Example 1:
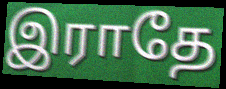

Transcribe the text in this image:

இராதே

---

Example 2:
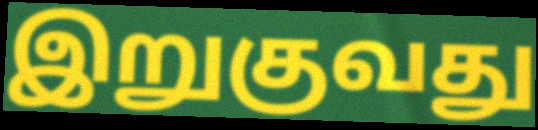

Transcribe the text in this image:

இறுகுவது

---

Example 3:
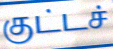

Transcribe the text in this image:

குட்டச்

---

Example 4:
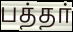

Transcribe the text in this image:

பத்தர்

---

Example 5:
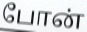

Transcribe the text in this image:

போன்